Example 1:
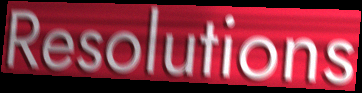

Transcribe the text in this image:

Resolutions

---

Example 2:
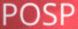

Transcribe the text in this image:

POSP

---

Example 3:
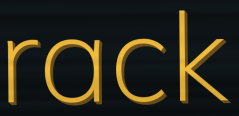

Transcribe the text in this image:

rack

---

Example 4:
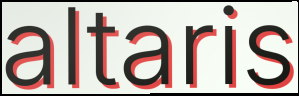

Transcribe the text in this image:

altaris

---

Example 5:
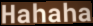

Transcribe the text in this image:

Hahaha